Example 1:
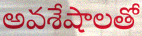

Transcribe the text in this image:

అవశేషాలతో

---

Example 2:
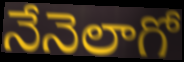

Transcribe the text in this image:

నేనెలాగో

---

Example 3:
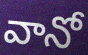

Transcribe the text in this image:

వానో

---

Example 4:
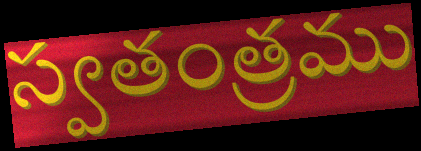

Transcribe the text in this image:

స్వతంత్రము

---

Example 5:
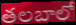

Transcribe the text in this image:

తలబాలో